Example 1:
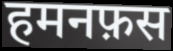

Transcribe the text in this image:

हमनफ़स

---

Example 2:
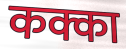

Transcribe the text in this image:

कक्का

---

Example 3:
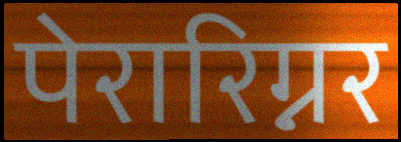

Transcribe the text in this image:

पेरारिग्नर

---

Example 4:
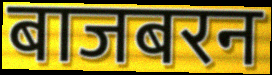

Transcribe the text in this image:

बाजबरन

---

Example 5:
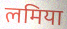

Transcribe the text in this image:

लमिया